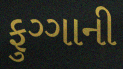
ફુગ્ગાની